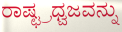
ರಾಷ್ಟ್ರಧ್ವಜವನ್ನು